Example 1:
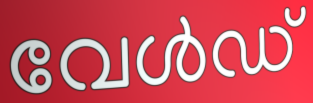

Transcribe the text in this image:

വേൾഡ്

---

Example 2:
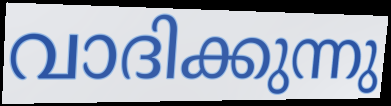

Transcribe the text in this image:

വാദിക്കുന്നു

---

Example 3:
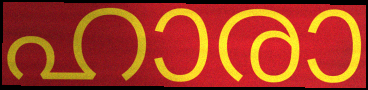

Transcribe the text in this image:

ഹാരാ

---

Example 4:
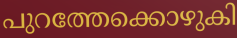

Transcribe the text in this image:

പുറത്തേക്കൊഴുകി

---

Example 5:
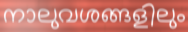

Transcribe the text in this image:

നാലുവശങ്ങളിലും